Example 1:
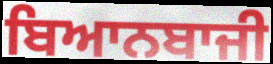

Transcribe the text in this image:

ਬਿਆਨਬਾਜੀ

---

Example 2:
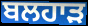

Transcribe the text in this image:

ਬਲਹਾੜ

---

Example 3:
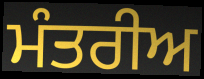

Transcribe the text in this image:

ਮੰਤਰੀਅ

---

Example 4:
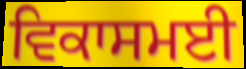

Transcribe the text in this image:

ਵਿਕਾਸਮਈ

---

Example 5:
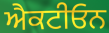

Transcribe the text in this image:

ਐਕਟੀਓਨ